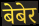
बेबेर